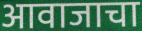
आवाजाचा